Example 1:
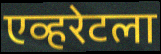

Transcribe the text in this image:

एव्हरेटला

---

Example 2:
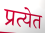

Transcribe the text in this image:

प्रत्येत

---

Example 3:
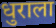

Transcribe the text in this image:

धुराला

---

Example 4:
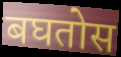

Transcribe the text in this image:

बघतोस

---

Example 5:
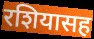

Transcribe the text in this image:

रशियासह